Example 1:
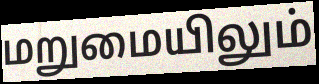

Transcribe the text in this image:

மறுமையிலும்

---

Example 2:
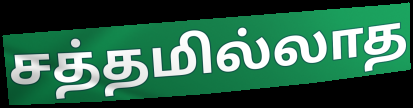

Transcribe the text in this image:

சத்தமில்லாத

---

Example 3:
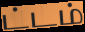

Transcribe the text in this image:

ட்டம்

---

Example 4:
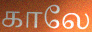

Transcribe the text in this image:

காலே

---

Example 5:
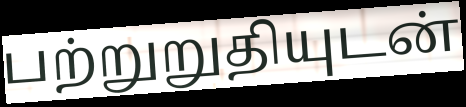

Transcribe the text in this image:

பற்றுறுதியுடன்